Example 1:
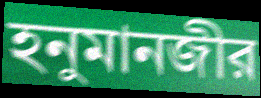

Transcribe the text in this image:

হনুমানজীর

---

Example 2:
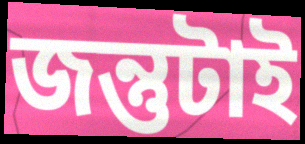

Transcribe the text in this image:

জন্তুটাই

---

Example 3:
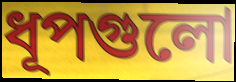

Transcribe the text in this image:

ধূপগুলো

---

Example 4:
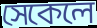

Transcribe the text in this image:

সেকেলে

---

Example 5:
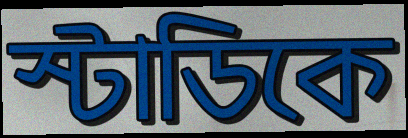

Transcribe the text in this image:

স্টাডিকে